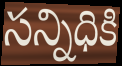
సన్నిధికి